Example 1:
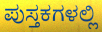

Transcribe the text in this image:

ಪುಸ್ತಕಗಳಲ್ಲಿ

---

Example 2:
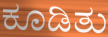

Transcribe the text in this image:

ಕೂಡಿತು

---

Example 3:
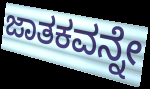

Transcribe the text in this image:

ಜಾತಕವನ್ನೇ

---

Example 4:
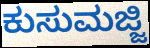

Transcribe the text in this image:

ಕುಸುಮಜ್ಜಿ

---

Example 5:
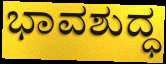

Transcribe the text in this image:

ಭಾವಶುದ್ಧ